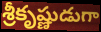
శ్రీకృష్ణుడుగా